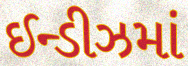
ઈન્ડીઝમાં